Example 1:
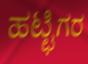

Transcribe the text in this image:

ಹಟ್ಟಿಗರ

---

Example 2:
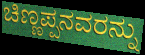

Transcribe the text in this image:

ಚಿಣ್ಣಪ್ಪನವರನ್ನು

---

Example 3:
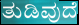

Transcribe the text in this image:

ತುಡಿವುದೆ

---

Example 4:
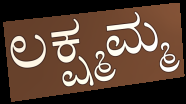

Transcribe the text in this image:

ಲಕ್ಷ್ಮಮ್ಮ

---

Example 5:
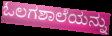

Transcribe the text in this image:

ಓಲಗಶಾಲೆಯನ್ನು